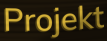
Projekt